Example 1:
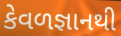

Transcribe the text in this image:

કેવળજ્ઞાનથી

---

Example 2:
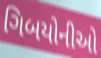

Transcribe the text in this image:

ગિબયોનીઓ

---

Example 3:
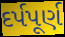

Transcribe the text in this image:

દર્પપૂર્ણ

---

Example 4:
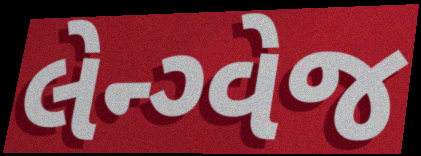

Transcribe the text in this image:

લેન્ગ્વેજ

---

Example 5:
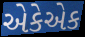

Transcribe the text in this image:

એકેએક